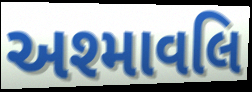
અશ્માવલિ